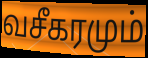
வசீகரமும்